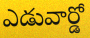
ఎడువార్డో